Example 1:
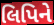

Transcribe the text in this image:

લિપિને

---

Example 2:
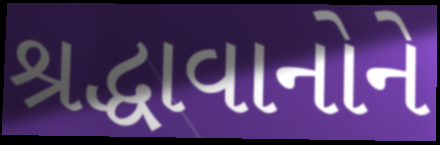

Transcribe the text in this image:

શ્રદ્ધાવાનોને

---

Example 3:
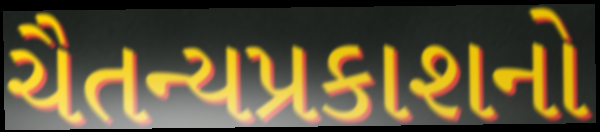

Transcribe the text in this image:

ચૈતન્યપ્રકાશનો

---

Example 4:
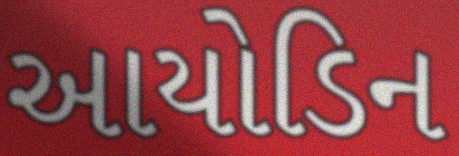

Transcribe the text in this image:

આયોડિન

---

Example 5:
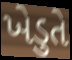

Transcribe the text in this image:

ખેડુતે